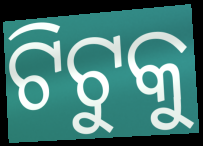
ଟିଟୁକୁ